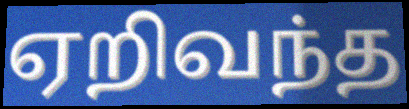
ஏறிவந்த